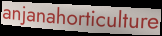
anjanahorticulture